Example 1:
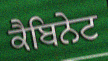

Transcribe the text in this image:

ਕੈਬਿਨੇਟ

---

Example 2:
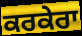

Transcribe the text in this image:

ਕਰਕੇਰਾ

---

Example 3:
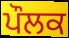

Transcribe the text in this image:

ਪੌਲਕ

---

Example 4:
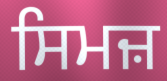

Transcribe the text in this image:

ਸਿਮਜ਼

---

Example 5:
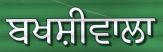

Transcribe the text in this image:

ਬਖਸ਼ੀਵਾਲਾ